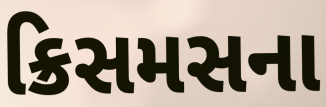
ક્રિસમસના